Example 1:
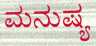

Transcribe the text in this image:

ಮನುಷ್ಯ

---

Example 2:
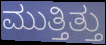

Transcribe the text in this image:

ಮುತ್ತಿತ್ತು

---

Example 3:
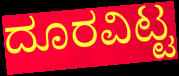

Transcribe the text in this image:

ದೂರವಿಟ್ಟ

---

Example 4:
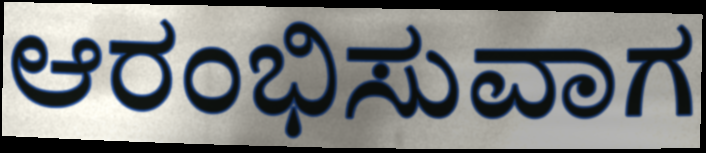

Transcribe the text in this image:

ಆರಂಭಿಸುವಾಗ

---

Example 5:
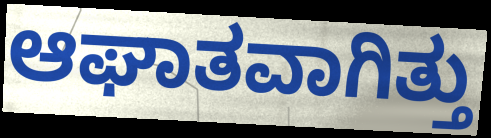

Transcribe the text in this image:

ಆಘಾತವಾಗಿತ್ತು